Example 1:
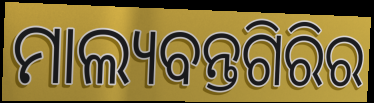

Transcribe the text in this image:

ମାଲ୍ୟବନ୍ତଗିରିର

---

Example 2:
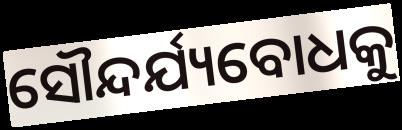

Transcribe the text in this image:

ସୌନ୍ଦର୍ଯ୍ୟବୋଧକୁ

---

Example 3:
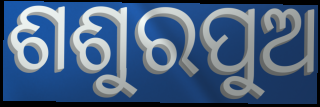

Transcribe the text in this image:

ଶଶୁରପୁଅ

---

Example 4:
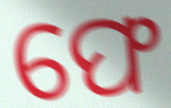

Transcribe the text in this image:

ଫେ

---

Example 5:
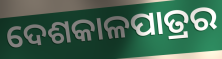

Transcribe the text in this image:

ଦେଶକାଳପାତ୍ରର